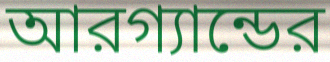
আরগ্যান্ডের